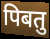
पिबतु